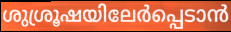
ശുശ്രൂഷയിലേർപ്പെടാൻ